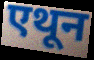
एथून